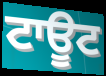
ਟਾਊਟ